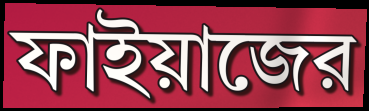
ফাইয়াজের